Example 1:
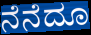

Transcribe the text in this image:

ನೆನೆದೂ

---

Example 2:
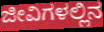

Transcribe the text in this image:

ಜೀವಿಗಳಲ್ಲಿನ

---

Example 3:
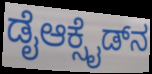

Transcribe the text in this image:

ಡೈಆಕ್ಸೈಡ್‌ನ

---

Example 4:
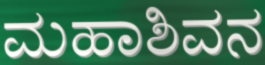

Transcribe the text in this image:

ಮಹಾಶಿವನ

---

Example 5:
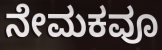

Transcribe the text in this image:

ನೇಮಕವೂ